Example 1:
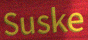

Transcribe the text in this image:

Suske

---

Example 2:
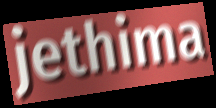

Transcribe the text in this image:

jethima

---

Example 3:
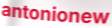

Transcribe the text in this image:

antonionew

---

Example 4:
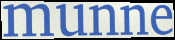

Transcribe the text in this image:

munne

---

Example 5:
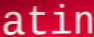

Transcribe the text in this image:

atin